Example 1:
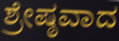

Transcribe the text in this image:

ಶ್ರೇಷ್ಠವಾದ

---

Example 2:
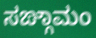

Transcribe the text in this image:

ಸಙ್ಗಾಮಂ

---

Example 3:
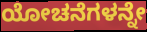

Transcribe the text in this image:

ಯೋಚನೆಗಳನ್ನೇ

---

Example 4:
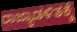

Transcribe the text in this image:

ರಾಜ್ಯಾಡಳಿತಕ್ಕೆ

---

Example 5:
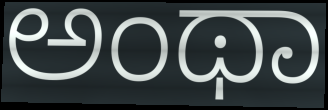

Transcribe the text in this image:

ಅಂಥಾ